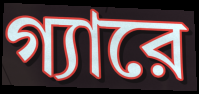
গ্যারে